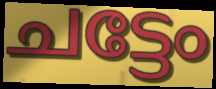
ചട്ടേം